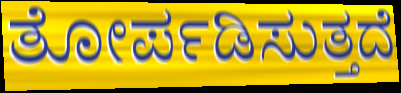
ತೋರ್ಪಡಿಸುತ್ತದೆ